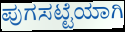
ಪುಗಸಟ್ಟೆಯಾಗಿ